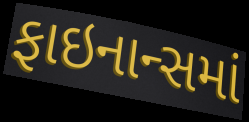
ફાઇનાન્સમાં